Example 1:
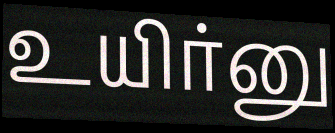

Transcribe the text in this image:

உயிர்னு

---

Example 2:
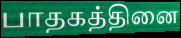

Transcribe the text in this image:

பாதகத்தினை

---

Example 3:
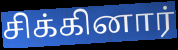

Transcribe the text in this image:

சிக்கினார்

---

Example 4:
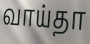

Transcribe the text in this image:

வாய்தா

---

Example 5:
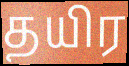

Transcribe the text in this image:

தயிர